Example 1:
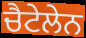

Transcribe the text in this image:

ਚੈਟੇਲੇਨ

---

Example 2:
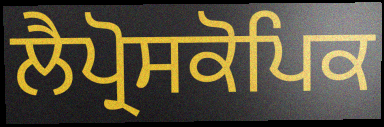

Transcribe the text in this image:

ਲੈਪ੍ਰੋਸਕੋਪਿਕ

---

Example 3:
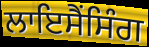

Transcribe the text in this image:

ਲਾਇਸੈਂਸਿੰਗ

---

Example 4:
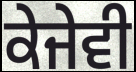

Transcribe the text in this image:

ਕੇਜੇਵੀ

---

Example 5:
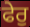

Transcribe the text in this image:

ਫੇਰੁ